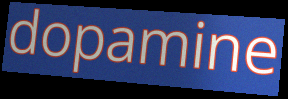
dopamine